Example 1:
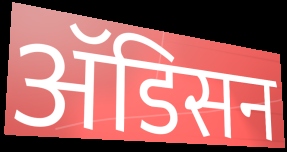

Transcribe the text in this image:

ॲडिसन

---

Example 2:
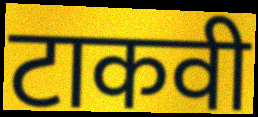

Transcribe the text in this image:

टाकवी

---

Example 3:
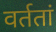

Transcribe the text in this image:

वर्ततां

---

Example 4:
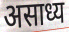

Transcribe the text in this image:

असाध्य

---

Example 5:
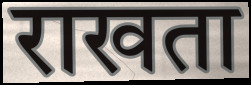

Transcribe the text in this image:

राखता